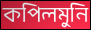
কপিলমুনি